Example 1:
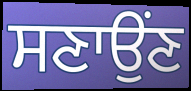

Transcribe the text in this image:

ਸਣਾਉਂਣ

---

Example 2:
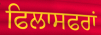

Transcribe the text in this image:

ਫਿਲਾਸਫਰਾਂ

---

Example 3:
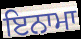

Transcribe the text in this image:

ਇਨਾਮਾ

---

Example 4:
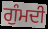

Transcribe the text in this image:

ਗੁੰਮਦੀ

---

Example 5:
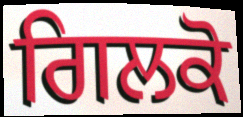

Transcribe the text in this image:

ਗਿਲਕੋ